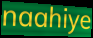
naahiye